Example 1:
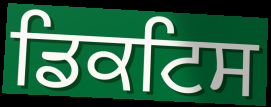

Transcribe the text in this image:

ਡਿਕਟਿਸ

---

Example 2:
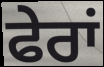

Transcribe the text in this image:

ਫੇਰਾਂ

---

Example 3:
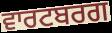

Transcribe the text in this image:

ਵਾਰਟਬਰਗ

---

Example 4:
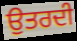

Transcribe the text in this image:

ਉਤਰਦੀ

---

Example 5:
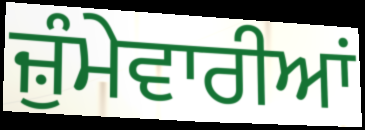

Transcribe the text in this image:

ਜ਼ੁੰਮੇਵਾਰੀਆਂ